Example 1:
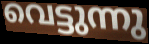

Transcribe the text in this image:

വെട്ടുന്നു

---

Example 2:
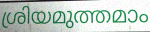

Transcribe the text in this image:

ശ്രിയമുത്തമാം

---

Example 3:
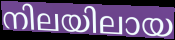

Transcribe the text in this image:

നിലയിലായ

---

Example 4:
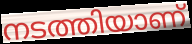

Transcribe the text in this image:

നടത്തിയാണ്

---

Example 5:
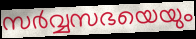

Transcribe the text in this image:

സർവ്വസഭയെയും